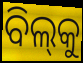
ବିଲ୍‌କୁ